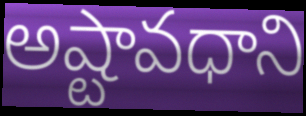
అష్టావధాని